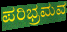
ಪರಿಭ್ರಮವ